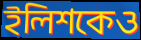
ইলিশকেও